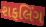
શફલિંગ